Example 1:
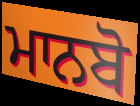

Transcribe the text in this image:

ਮਾਨਬੋ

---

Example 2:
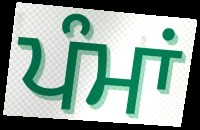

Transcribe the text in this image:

ਪੰਮਾਂ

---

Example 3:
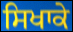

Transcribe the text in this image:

ਸਿਖਾਕੇ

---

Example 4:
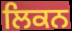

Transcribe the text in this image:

ਲਿਕਨ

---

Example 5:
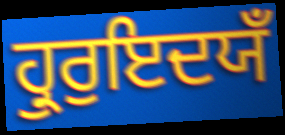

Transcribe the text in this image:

ਹ੍ਰੁਰੁਇਦਯਁ